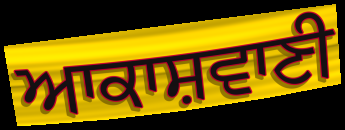
ਆਕਾਸ਼ਵਾਣੀ